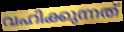
വഹിക്കുന്നത്